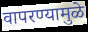
वापरण्यामुळे